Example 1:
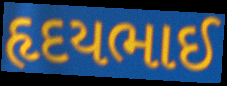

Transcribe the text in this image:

હૃદયભાઈ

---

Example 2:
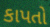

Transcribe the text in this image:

કાપતો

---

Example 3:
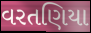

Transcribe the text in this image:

વરતણિયા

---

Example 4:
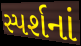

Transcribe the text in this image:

સ્પર્શનાં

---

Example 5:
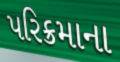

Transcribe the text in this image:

પરિક્રમાના